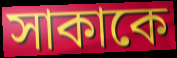
সাকাকে